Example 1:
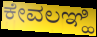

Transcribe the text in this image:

ಕೇವಲಞ್ಹಿ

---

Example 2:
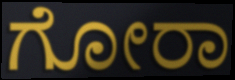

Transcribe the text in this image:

ಗೋರಾ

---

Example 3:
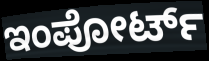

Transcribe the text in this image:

ಇಂಪೋರ್ಟ್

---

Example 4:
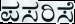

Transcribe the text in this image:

ಪಸರಿಸೆ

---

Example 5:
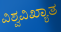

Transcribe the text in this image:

ವಿಶ್ವವಿಖ್ಯಾತ